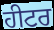
ਹੀਟਰ